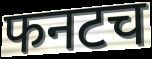
फनटच